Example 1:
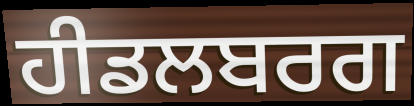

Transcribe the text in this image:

ਹੀਡਲਬਰਗ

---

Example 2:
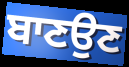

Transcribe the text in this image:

ਬਾਣਉਣ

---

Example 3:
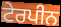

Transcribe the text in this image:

ਟੇਰਪੀਨ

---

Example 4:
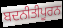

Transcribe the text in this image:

ਬਦਨੀਤੀਪੂਰਨ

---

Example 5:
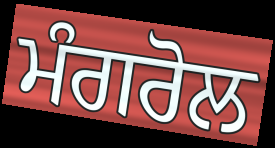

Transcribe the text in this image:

ਮੰਗਰੋਲ